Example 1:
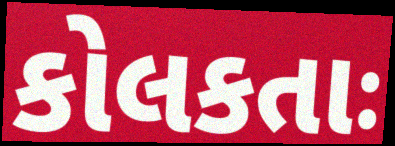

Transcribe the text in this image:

કોલકતાઃ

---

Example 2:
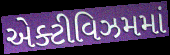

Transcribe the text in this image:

એક્ટીવિઝમમાં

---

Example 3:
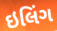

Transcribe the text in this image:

ઇલિંગ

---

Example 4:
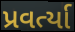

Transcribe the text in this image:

પ્રવર્ત્યા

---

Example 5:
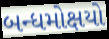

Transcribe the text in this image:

બન્ધમોક્ષયો